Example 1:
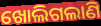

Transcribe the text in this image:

ଖୋଲିଗଲାଣି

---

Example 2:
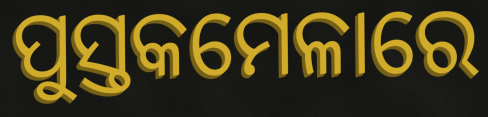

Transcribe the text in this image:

ପୁସ୍ତକମେଳାରେ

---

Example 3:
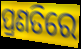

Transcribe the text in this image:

ପ୍ରଣତିରେ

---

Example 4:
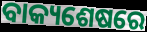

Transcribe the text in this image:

ବାକ୍ୟଶେଷରେ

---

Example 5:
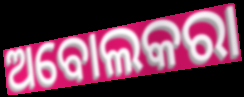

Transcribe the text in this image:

ଅବୋଲକରା